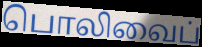
பொலிவைப்